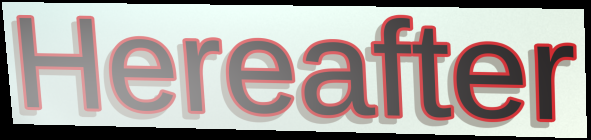
Hereafter